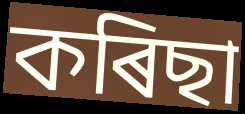
কৰিছা